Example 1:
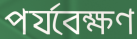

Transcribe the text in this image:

পৰ্যবেক্ষণ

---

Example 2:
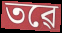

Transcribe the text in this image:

তৱে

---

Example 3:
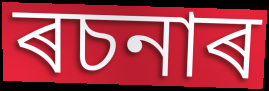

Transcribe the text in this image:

ৰচনাৰ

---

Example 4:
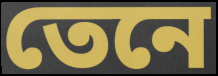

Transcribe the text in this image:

তেনে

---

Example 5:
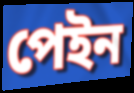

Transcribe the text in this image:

পেইন